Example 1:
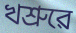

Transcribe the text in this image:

খশ্ৰুৱে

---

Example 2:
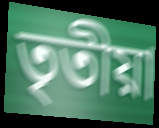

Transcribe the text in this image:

তৃতীয়া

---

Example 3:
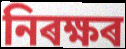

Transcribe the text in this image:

নিৰক্ষৰ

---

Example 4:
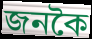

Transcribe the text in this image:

জনকৈ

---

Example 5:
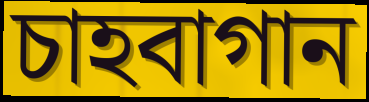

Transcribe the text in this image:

চাহবাগান